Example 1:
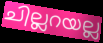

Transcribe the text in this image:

ചില്ലറയല്ല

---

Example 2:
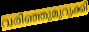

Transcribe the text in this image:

വരിഞ്ഞുമുറുക്കി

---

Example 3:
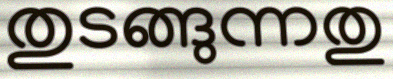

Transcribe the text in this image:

തുടങ്ങുന്നതു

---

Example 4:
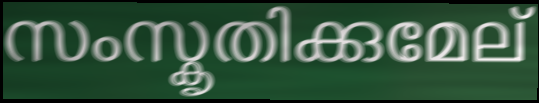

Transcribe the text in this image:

സംസ്കൃതിക്കുമേല്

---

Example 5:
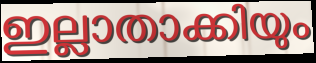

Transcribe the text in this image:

ഇല്ലാതാക്കിയും